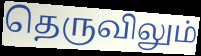
தெருவிலும்